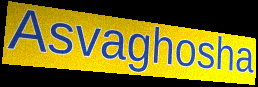
Asvaghosha